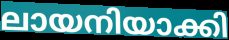
ലായനിയാക്കി